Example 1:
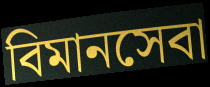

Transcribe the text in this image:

বিমানসেবা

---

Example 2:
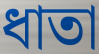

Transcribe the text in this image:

ধাতা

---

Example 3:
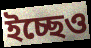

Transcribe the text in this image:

ইচ্ছেও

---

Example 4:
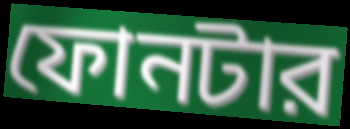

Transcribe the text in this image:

ফোনটার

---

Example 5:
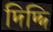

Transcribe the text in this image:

দিদ্দি